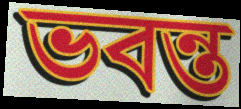
ভবন্ত